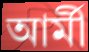
আৰ্মী